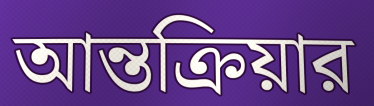
আন্তক্রিয়ার